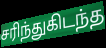
சரிந்துகிடந்த